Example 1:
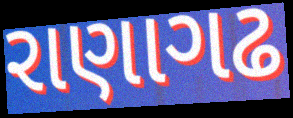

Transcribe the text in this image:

રાણાગઢ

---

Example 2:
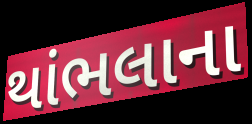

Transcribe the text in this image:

થાંભલાના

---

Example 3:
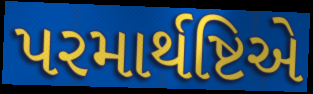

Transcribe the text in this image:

પરમાર્થષ્ટિએ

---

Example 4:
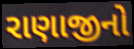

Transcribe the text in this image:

રાણાજીનો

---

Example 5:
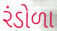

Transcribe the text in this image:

રંડોળા